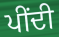
ਪੀਂਦੀ